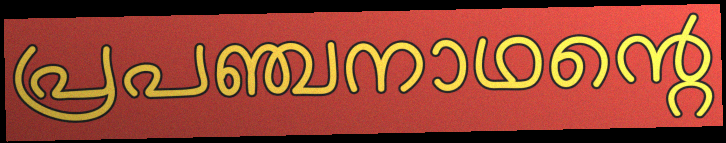
പ്രപഞ്ചനാഥന്റെ